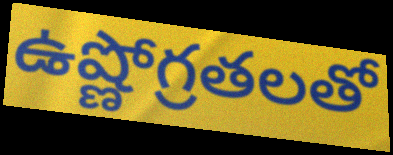
ఉష్ణోగ్రతలతో